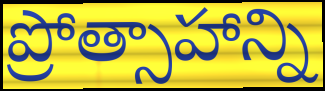
ప్రోత్సాహాన్ని